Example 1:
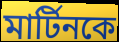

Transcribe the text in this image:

মার্টিনকে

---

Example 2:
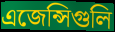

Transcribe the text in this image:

এজেন্সিগুলি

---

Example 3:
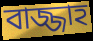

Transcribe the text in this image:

বাজ্জাহ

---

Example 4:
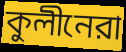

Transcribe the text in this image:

কুলীনেরা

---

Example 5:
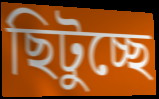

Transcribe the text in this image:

ছিটুচ্ছে